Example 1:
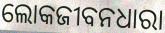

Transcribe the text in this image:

ଲୋକଜୀବନଧାରା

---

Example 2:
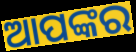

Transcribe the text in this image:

ଆପଙ୍କର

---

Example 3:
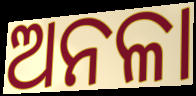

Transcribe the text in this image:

ଅନଳା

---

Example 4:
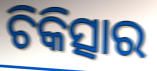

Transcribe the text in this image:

ଚିକିତ୍ସାର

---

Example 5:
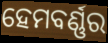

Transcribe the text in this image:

ହେମବର୍ଣ୍ଣର